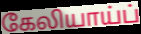
கேலியாய்ப்